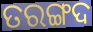
ତରଙ୍ଗଦ